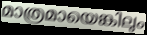
മാത്രമായെങ്കിലും